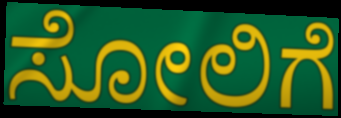
ಸೋಲಿಗೆ